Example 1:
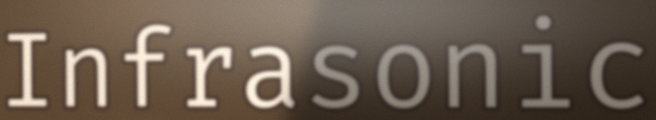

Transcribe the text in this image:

Infrasonic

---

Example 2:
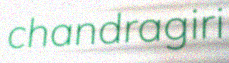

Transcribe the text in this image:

chandragiri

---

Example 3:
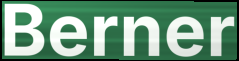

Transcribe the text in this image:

Berner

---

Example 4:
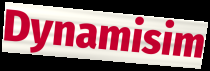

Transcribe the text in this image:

Dynamisim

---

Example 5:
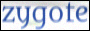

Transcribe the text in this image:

zygote